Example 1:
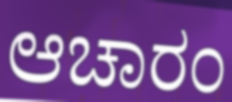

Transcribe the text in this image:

ಆಚಾರಂ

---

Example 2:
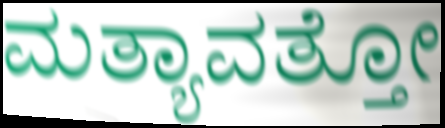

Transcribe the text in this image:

ಮತ್ಯಾವತ್ತೋ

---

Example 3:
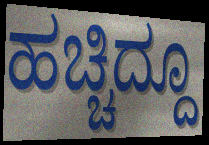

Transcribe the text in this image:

ಹಚ್ಚಿದ್ದೂ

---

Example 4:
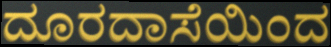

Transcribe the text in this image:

ದೂರದಾಸೆಯಿಂದ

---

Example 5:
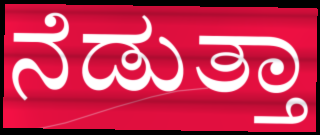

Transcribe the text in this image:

ನೆಡುತ್ತಾ